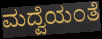
ಮದ್ವೆಯಂತೆ